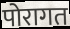
पोरागत